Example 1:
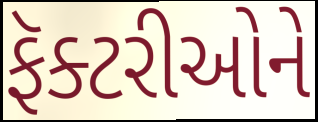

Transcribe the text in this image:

ફૅક્ટરીઓને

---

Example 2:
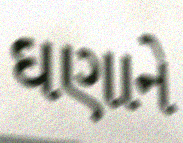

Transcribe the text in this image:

ઘણાને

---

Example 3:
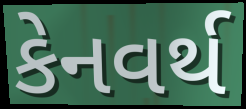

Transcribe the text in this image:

કેનવર્થ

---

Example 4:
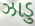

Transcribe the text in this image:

ઝાડુ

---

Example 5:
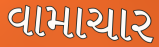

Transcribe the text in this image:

વામાચાર